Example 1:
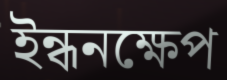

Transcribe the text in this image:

ইন্ধনক্ষেপ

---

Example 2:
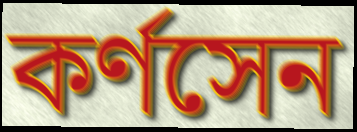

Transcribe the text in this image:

কর্ণসেন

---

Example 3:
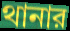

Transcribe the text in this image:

থানার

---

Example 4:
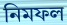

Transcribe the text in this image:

নিমফল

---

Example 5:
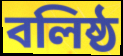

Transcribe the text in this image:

বলিষ্ঠ